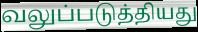
வலுப்படுத்தியது